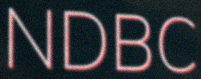
NDBC